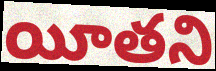
యీతని